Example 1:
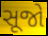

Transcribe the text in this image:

સૂજો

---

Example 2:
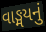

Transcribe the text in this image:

વાઙ્મયનું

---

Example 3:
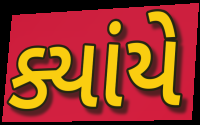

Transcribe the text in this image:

ક્યાંયે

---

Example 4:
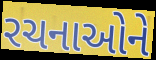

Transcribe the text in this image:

રચનાઓને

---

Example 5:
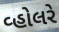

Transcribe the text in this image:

વ્હોલરે